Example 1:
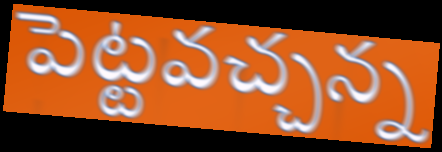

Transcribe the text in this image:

పెట్టవచ్చన్న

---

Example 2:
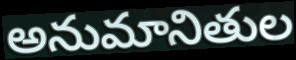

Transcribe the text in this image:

అనుమానితుల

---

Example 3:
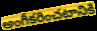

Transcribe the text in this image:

అంగీకరించటానికి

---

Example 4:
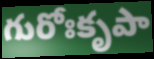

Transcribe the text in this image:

గురోఃకృపా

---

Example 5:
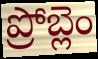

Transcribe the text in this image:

ప్రోబ్లెం